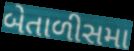
બેતાળીસમા